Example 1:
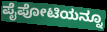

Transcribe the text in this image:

ಪೈಪೋಟಿಯನ್ನೂ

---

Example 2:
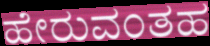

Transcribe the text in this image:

ಹೇರುವಂತಹ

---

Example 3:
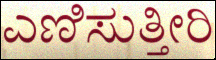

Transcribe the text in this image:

ಎಣಿಸುತ್ತೀರಿ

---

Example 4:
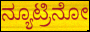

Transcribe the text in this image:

ನ್ಯೂಟ್ರಿನೋ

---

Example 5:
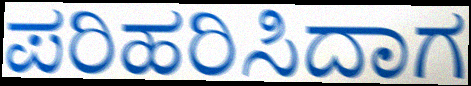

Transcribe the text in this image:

ಪರಿಹರಿಸಿದಾಗ